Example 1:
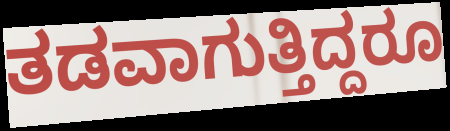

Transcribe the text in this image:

ತಡವಾಗುತ್ತಿದ್ದರೂ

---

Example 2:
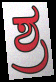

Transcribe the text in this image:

ಶ್ರ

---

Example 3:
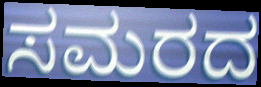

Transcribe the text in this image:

ಸಮರದ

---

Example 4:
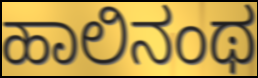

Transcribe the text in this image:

ಹಾಲಿನಂಥ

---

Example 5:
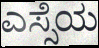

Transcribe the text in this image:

ಎಸ್ಸೆಯ